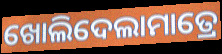
ଖୋଲିଦେଲାମାତ୍ରେ